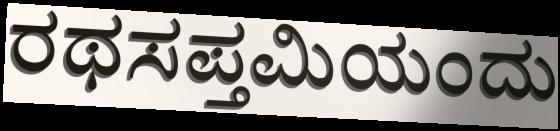
ರಥಸಪ್ತಮಿಯಂದು